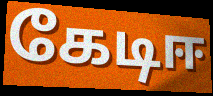
கேடிஈ